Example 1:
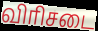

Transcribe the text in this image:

விரிசடை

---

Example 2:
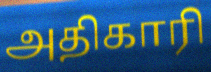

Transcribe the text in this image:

அதிகாரி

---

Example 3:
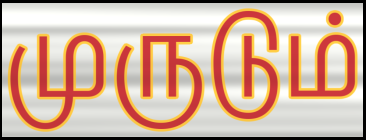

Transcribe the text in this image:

முருடும்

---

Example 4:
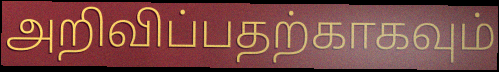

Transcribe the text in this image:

அறிவிப்பதற்காகவும்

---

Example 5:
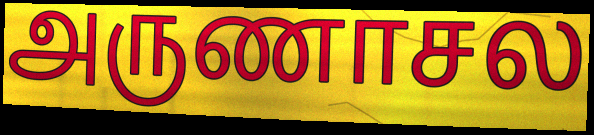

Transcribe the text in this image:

அருணாசல